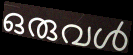
ഒരുവൾ